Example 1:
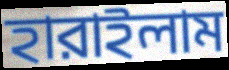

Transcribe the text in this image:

হারাইলাম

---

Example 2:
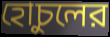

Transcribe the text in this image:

হোচুলের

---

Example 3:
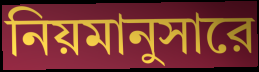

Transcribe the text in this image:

নিয়মানুসারে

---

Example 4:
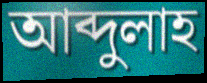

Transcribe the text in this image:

আব্দুলাহ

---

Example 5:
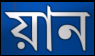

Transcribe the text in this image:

য়ান